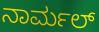
ನಾರ್ಮಲ್